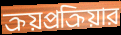
ক্রয়প্রক্রিয়ার